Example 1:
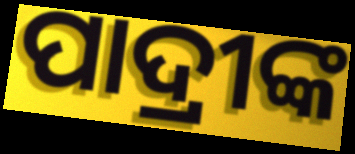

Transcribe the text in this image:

ପାଦ୍ରୀଙ୍କ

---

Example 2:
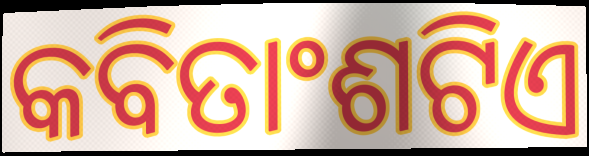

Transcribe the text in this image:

କବିତାଂଶଟିଏ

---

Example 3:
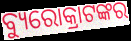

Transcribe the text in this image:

ବ୍ୟୁରୋକ୍ରାଟଙ୍କର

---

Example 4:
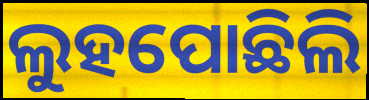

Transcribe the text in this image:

ଲୁହପୋଛିଲି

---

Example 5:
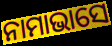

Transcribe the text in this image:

ନାମାଭାସେ